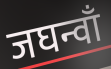
जघन्वाँ